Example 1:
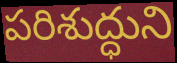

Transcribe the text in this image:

పరిశుద్ధుని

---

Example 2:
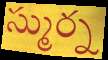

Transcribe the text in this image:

స్ముర్న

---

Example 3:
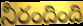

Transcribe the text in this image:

నీరందింది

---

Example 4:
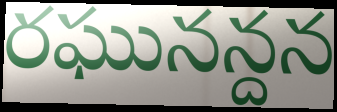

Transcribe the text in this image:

రఘునన్దన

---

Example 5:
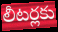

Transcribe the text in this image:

లీటర్లకు